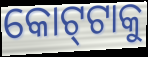
କୋଟ୍‌ଟାକୁ